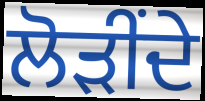
ਲੋੜੀਂਦੇ